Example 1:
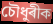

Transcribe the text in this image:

চৌধুৰীক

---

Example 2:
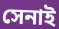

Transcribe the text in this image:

সেনাই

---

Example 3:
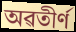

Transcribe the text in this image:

অৱতীৰ্ণ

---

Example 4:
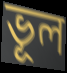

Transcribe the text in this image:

ভূল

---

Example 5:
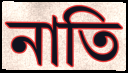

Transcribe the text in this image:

নাতি